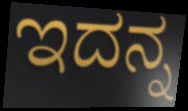
ಇದನ್ನ